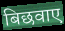
बिछवाए